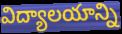
విద్యాలయాన్ని